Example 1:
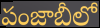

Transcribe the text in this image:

పంజాబీలో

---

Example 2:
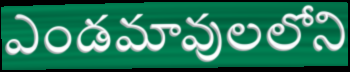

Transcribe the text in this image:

ఎండమావులలోని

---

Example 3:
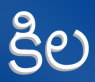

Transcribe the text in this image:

కిల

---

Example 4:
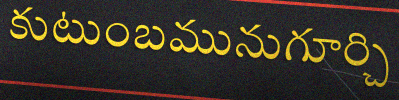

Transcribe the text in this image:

కుటుంబమునుగూర్చి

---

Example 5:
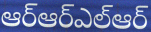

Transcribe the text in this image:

ఆర్ఆర్ఎల్ఆర్